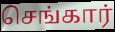
செங்கார்